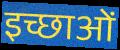
इच्छाओं